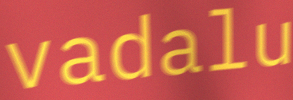
vadalu